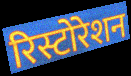
रिस्टोरेशन